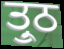
ਤ੍ਰੁਠ